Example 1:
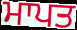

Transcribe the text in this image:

ਮਾਪਤ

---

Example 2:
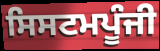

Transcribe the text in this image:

ਸਿਸਟਮਪੂੰਜੀ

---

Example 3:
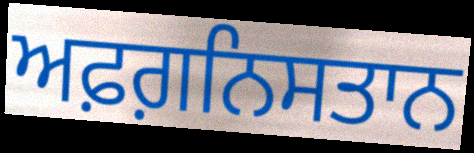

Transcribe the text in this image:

ਅਫ਼ਗ਼ਨਿਸਤਾਨ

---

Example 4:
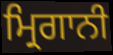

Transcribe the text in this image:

ਮ੍ਰਿਗਾਨੀ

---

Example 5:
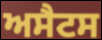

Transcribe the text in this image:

ਅਸੈਟਸ